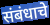
संबंधाचे